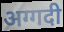
अग्गदी